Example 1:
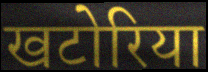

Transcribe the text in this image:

खटोरिया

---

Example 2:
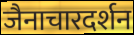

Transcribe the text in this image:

जैनाचारदर्शन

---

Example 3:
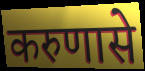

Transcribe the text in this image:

करुणासे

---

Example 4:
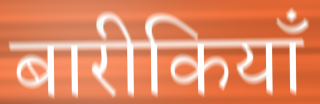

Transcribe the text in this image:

बारीकियाँ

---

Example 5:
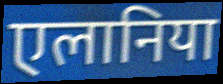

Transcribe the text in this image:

एलानिया